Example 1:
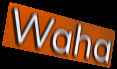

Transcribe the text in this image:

Waha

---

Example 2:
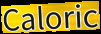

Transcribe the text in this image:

Caloric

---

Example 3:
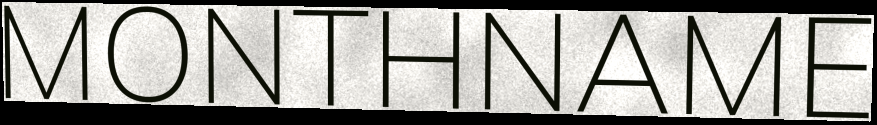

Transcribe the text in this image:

MONTHNAME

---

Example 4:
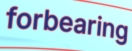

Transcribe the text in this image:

forbearing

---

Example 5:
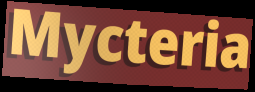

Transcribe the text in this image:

Mycteria